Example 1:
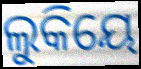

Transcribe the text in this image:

ଲୁକିୟେ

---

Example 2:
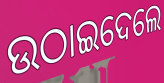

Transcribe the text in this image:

ଉଠାଇଦେଲେ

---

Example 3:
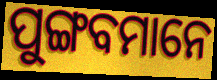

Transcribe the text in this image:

ପୁଙ୍ଗବମାନେ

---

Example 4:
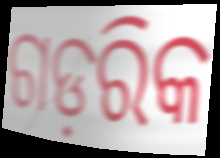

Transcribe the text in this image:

ଗଡ଼ରିକ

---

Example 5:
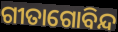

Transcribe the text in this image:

ଗୀତାଗୋବିନ୍ଦ